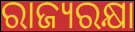
ରାଜ୍ୟରକ୍ଷା